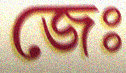
জেঃ